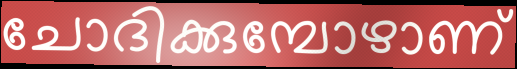
ചോദിക്കുമ്പോഴാണ്